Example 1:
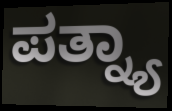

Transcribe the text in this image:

ಪತ್ನ್ಯಾ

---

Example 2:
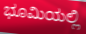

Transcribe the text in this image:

ಭೂಮಿಯಲ್ಲಿ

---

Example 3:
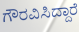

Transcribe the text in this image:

ಗೌರವಿಸಿದ್ದಾರೆ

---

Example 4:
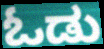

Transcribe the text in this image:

ಓಡು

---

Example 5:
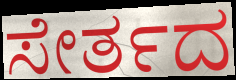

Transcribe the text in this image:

ಸೇರ್ತದ